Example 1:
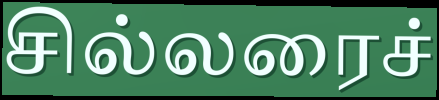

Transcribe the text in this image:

சில்லரைச்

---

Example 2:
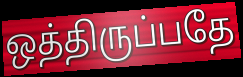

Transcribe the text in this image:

ஒத்திருப்பதே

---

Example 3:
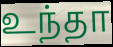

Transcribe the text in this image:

உந்தா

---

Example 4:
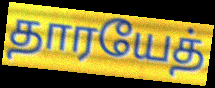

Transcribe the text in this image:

தாரயேத்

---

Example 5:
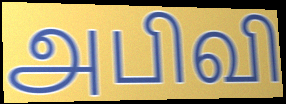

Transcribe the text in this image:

அபிவி